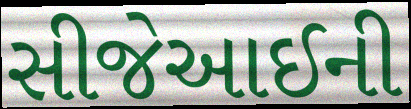
સીજેઆઈની